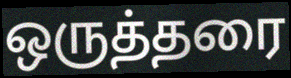
ஒருத்தரை